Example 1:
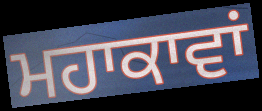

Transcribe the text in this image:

ਮਹਾਕਾਵਾਂ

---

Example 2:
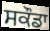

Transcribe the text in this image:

ਸਕੌਡਾ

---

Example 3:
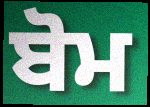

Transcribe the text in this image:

ਬੋਮ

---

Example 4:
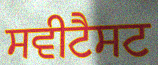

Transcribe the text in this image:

ਸਵੀਟੈਸਟ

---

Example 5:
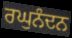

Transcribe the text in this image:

ਰਘੁਨੰਦਨ